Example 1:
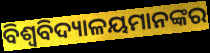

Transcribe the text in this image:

ବିଶ୍ଵବିଦ୍ୟାଳୟମାନଙ୍କର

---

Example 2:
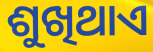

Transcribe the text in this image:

ଶୁଖିଥାଏ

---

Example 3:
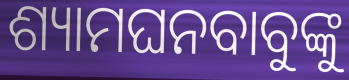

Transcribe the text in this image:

ଶ୍ୟାମଘନବାବୁଙ୍କୁ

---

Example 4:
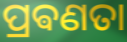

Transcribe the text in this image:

ପ୍ରଵଣତା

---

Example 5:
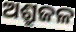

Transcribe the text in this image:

ଅଶ୍ରୁଜଳ